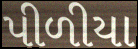
પીળીયા